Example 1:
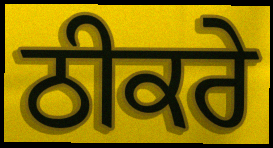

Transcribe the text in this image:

ਠੀਕਰੇ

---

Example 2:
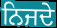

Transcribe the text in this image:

ਨਿਜਦੇ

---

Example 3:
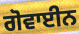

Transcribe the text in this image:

ਗੋਵਾਈਨ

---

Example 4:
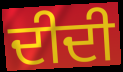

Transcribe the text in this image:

ਦੀਦੀ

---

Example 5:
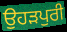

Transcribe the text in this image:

ਉਹੜਪੁਰੀ